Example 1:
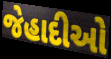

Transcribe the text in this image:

જેહાદીઓ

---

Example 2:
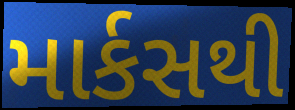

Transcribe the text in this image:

માર્કસથી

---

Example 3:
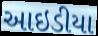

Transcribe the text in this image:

આઇડીયા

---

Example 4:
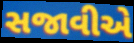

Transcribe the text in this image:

સજાવીએ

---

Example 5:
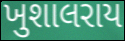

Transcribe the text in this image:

ખુશાલરાય